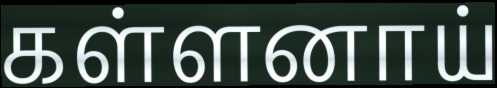
கள்ளனாய்